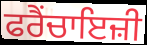
ਫਰੈਂਚਾਇਜ਼ੀ